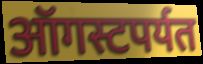
ऑगस्टपर्यत